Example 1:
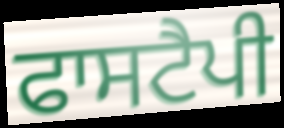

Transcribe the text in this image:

ਫਾਸਟੈਪੀ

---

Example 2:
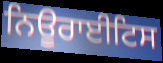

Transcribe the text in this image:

ਨਿਊਰਾਈਟਿਸ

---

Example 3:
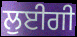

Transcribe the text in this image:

ਲੁਈਗੀ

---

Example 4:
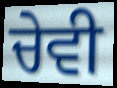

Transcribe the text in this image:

ਚੇਵੀ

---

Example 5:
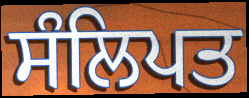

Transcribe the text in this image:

ਸੰਲਿਪਤ